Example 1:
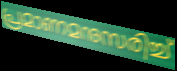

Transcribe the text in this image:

പ്രമാണമനുസരിച്ച്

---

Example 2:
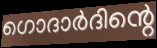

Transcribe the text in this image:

ഗൊദാർദിന്റെ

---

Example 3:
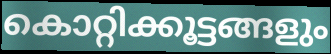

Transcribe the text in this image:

കൊറ്റിക്കൂട്ടങ്ങളും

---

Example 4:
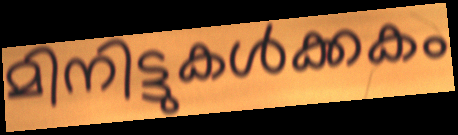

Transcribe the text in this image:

മിനിട്ടുകൾക്കകം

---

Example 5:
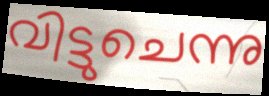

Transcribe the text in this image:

വിട്ടുചെന്നു